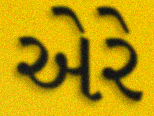
એરે